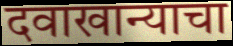
दवाखान्याचा